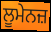
ਲੂਮੇਨਜ਼